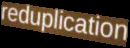
reduplication